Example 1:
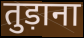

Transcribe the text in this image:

तुड़ाना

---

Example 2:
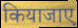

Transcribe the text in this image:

कियाजाए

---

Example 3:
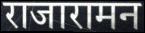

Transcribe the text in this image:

राजारामन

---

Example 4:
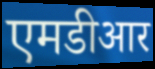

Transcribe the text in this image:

एमडीआर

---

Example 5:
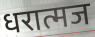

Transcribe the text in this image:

धरात्मज